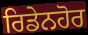
ਰਿਡੇਨਹੋਰ